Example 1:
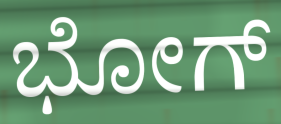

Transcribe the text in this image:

ಭೋಗ್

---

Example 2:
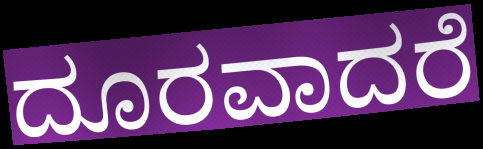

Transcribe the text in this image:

ದೂರವಾದರೆ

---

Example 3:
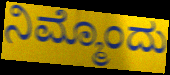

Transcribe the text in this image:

ನಿಮ್ಮೊಂದು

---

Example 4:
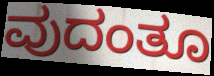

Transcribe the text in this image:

ವುದಂತೂ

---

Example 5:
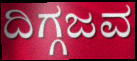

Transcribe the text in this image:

ದಿಗ್ಗಜವ